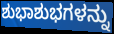
ಶುಭಾಶುಭಗಳನ್ನು